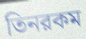
তিনরকম